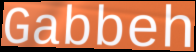
Gabbeh